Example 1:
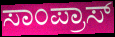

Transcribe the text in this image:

ಸಾಂಪ್ರಾಸ್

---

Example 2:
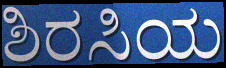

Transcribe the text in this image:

ಶಿರಸಿಯ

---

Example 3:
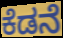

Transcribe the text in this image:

ಕೆಡನೆ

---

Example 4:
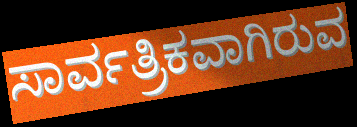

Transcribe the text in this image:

ಸಾರ್ವತ್ರಿಕವಾಗಿರುವ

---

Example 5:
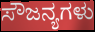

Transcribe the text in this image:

ಸೌಜನ್ಯಗಳು